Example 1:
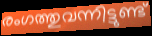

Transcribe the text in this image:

രംഗത്തുവന്നിട്ടുണ്ട്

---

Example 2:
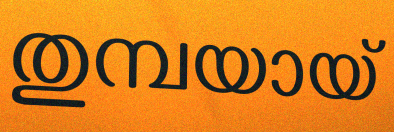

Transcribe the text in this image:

തുമ്പയായ്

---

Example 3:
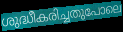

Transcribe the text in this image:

ശുദ്ധീകരിച്ചതുപോലെ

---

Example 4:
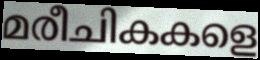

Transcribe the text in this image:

മരീചികകളെ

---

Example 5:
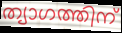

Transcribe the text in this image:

ത്യാഗത്തിന്